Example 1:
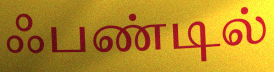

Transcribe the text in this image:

ஃபண்டில்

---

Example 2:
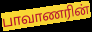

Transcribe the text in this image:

பாவாணரின்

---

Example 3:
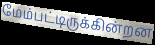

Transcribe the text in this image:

மேம்பட்டிருக்கின்றன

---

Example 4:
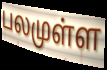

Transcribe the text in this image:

பலமுள்ள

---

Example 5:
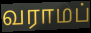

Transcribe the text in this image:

வராமப்